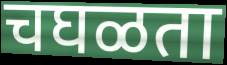
चघळता